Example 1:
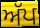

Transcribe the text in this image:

ਅੱਪ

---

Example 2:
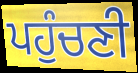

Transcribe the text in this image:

ਪਹੁੰਚਣੀ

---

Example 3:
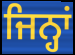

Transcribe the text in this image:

ਜਿਨ੍ਹਾਂ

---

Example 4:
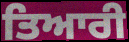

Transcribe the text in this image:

ਤਿਆਰੀ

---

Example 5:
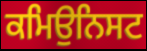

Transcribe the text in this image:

ਕਮਿਉਨਿਸਟ